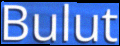
Bulut